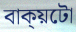
বাক্য়টো